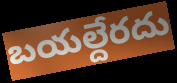
బయల్దేరదు